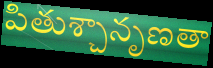
పితుశ్చానృణతా